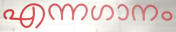
എന്നഗാനം